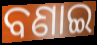
ବଣାଇ